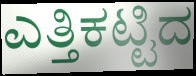
ಎತ್ತಿಕಟ್ಟಿದ